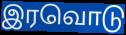
இரவொடு